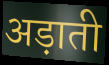
अड़ाती